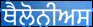
ਥੈਲੋਨੀਅਸ